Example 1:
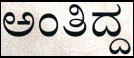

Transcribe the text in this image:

ಅಂತಿದ್ದ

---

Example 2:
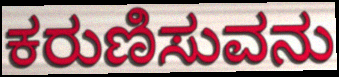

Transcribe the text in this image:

ಕರುಣಿಸುವನು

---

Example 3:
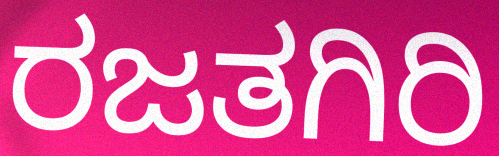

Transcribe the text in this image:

ರಜತಗಿರಿ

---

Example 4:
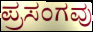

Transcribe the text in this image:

ಪ್ರಸಂಗವು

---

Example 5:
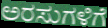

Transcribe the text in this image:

ಅರಸುಗಳಿಗೆ